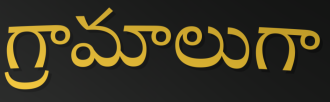
గ్రామాలుగా